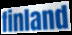
finland